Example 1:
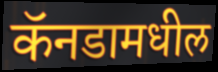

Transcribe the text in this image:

कॅनडामधील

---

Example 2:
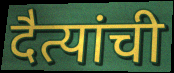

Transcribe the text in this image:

दैत्यांची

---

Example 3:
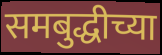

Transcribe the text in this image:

समबुद्धीच्या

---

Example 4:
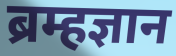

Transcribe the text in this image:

ब्रम्हज्ञान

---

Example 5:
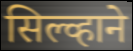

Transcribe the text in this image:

सिल्व्हाने